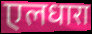
एलधारा